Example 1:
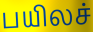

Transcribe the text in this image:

பயிலச்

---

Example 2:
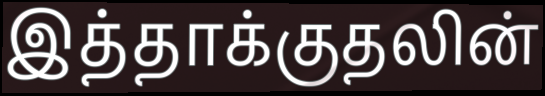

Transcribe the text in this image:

இத்தாக்குதலின்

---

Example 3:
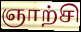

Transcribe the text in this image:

ஞாற்சி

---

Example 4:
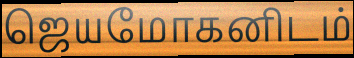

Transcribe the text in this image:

ஜெயமோகனிடம்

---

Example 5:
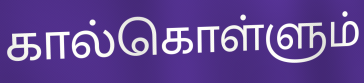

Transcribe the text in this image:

கால்கொள்ளும்